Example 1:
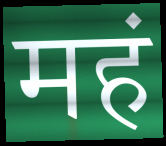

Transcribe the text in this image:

महं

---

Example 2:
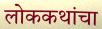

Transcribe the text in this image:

लोककथांचा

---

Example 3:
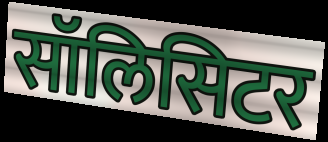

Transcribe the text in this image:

सॉलिसिटर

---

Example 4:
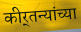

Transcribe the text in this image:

कीर्तन्यांच्या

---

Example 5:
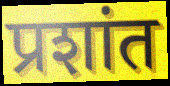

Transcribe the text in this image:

प्रशांत